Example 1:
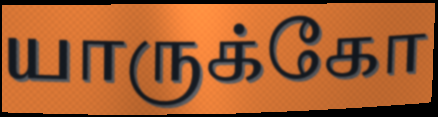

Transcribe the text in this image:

யாருக்கோ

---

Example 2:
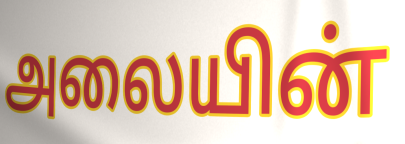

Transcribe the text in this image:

அலையின்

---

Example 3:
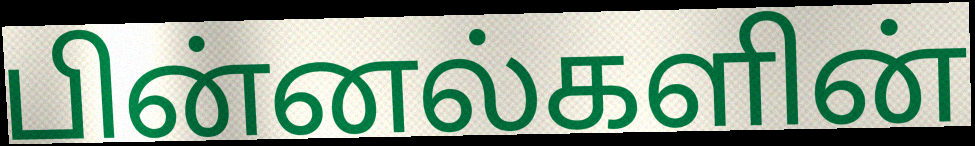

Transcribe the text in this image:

பின்னல்களின்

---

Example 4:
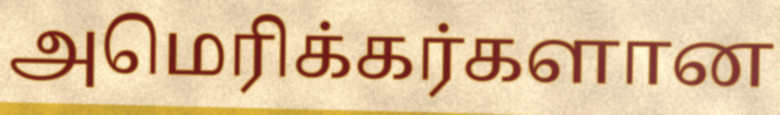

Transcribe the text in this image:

அமெரிக்கர்களான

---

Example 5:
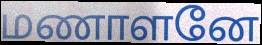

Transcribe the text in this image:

மணாளனே